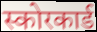
स्कोरकार्ड